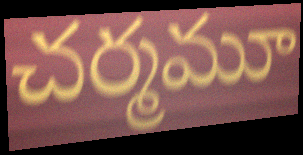
చర్మమూ